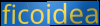
ficoidea